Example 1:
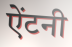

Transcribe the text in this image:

ऐंटनी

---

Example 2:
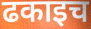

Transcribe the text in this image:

ढकाइच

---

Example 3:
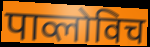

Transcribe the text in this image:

पाव्लोविच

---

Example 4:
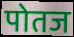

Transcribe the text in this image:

पोतज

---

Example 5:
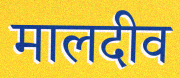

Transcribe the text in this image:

मालदीव